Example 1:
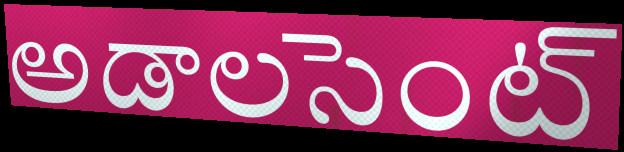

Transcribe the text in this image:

అడాలసెంట్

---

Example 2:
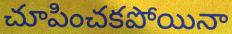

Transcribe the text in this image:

చూపించకపోయినా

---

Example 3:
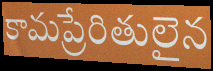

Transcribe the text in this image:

కామప్రేరితులైన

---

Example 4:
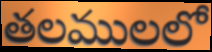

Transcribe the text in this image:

తలములలో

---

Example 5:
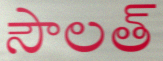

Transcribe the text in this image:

సౌలత్